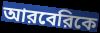
আরবেরিকে